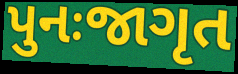
પુનઃજાગૃત